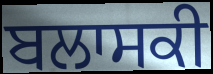
ਬਲਾਸਕੀ